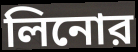
লিনোর